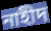
নাহীদ